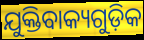
ଯୁକ୍ତିବାକ୍ୟଗୁଡ଼ିକ